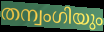
തന്വംഗിയും